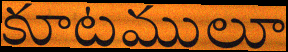
కూటములూ